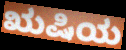
ಋಷಿಯ